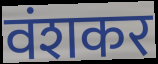
वंशकर